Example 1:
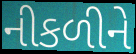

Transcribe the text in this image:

નીકળીને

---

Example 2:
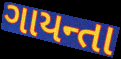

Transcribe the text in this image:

ગાયન્તા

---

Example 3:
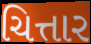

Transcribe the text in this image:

ચિત્તાર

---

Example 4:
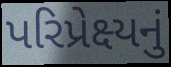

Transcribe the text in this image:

પરિપ્રેક્ષ્યનું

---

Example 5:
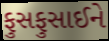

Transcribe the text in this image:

ફુસફુસાઈને